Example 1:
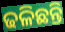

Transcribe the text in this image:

ଢଳିଛନ୍ତି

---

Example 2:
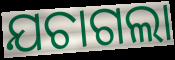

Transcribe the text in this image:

ଯଚାଗଲା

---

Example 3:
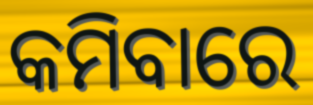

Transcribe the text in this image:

କମିବାରେ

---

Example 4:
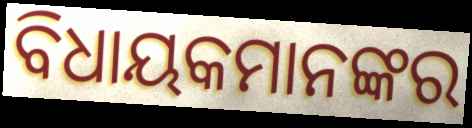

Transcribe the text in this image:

ବିଧାୟକମାନଙ୍କର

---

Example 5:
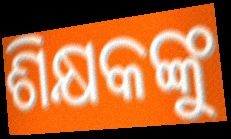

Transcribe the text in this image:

ଶିକ୍ଷକଙ୍କୁ